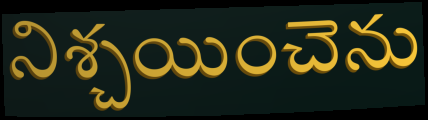
నిశ్చయించెను